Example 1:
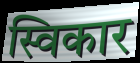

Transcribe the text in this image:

स्विकार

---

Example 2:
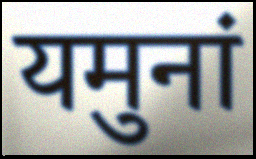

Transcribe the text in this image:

यमुनां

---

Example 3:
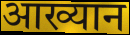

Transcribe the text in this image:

आख्यान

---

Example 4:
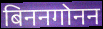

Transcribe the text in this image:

बिननगोनन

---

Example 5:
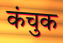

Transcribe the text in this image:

कंचुक